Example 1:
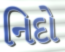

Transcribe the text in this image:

નિદો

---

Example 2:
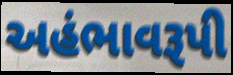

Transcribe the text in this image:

અહંભાવરૂપી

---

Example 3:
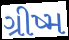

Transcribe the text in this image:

ગ્રીષ્મ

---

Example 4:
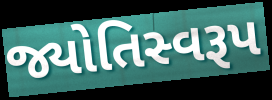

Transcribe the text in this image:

જ્યોતિસ્વરૂપ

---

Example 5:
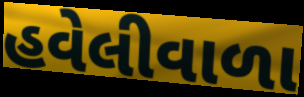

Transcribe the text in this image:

હવેલીવાળા